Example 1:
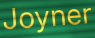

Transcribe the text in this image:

Joyner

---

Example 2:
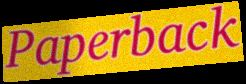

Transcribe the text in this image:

Paperback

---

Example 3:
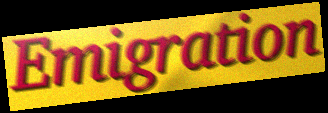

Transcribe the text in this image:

Emigration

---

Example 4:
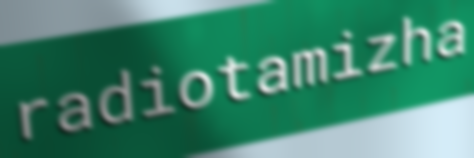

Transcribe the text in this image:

radiotamizha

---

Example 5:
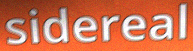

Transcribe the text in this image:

sidereal